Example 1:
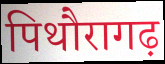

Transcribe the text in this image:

पिथौरागढ़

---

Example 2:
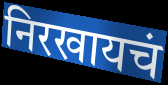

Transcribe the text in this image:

निरखायचं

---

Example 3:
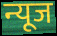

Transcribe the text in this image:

न्यूज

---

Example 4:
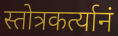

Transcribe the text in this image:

स्तोत्रकर्त्यानं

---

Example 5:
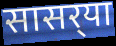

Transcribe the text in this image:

सासर्‍या